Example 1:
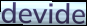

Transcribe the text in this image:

devide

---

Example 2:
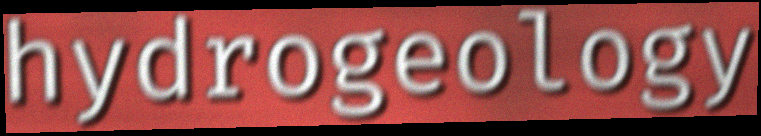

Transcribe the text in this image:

hydrogeology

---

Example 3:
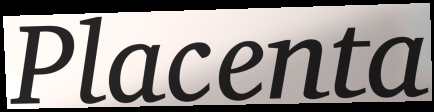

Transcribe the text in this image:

Placenta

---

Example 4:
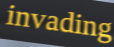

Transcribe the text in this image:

invading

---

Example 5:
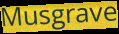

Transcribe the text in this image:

Musgrave